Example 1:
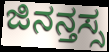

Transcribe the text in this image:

ಜಿನನ್ತಸ್ಸ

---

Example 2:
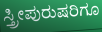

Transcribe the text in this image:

ಸ್ತ್ರೀಪುರುಷರಿಗೂ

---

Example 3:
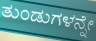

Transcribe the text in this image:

ತುಂಡುಗಳನ್ನೇ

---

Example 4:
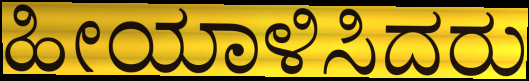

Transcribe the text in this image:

ಹೀಯಾಳಿಸಿದರು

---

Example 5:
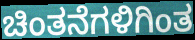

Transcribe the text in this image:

ಚಿಂತನೆಗಳಿಗಿಂತ